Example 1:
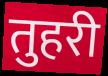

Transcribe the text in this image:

तुहरी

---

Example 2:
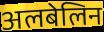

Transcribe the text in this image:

अलबेलिन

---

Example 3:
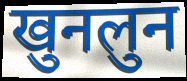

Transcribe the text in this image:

खुनलुन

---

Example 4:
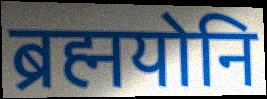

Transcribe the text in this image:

ब्रह्मयोनि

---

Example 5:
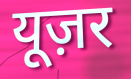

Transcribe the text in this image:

यूज़र